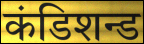
कंडिशन्ड